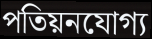
পতিয়নযোগ্য